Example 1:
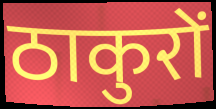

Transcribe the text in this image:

ठाकुरों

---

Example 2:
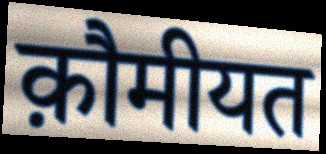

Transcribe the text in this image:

क़ौमीयत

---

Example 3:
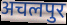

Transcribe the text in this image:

अचलपुर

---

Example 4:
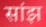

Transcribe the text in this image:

सांझ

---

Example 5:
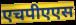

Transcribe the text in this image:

एचपीएएस